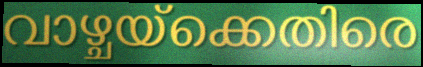
വാഴ്ചയ്‌ക്കെതിരെ